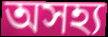
অসহ্য